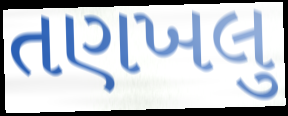
તણખલુ